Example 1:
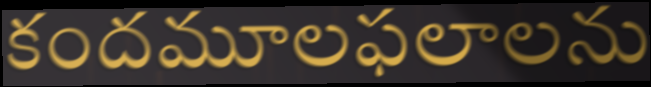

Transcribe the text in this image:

కందమూలఫలాలను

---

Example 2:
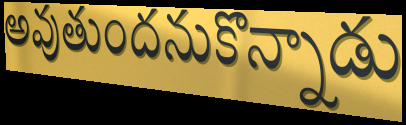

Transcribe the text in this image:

అవుతుందనుకొన్నాడు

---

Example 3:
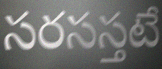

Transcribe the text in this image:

సరసస్తటే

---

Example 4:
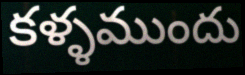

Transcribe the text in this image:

కళ్ళముందు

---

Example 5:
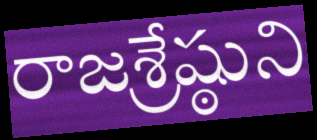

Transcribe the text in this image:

రాజశ్రేష్ఠుని